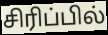
சிரிப்பில்